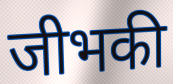
जीभकी